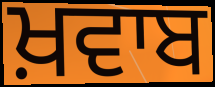
ਖ਼ਵਾਬ